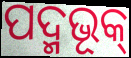
ପଦ୍ମଭୂକ୍